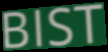
BIST